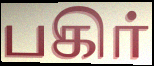
பகிர்